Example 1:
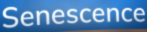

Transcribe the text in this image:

Senescence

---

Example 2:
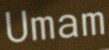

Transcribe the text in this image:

Umam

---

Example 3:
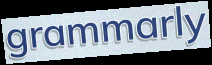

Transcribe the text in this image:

grammarly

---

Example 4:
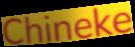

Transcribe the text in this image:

Chineke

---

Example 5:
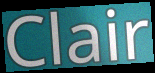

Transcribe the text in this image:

Clair